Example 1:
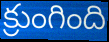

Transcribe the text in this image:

క్రుంగింది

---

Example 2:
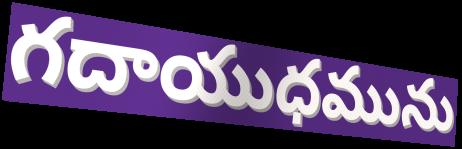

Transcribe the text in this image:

గదాయుధమును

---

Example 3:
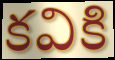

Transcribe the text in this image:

కవికి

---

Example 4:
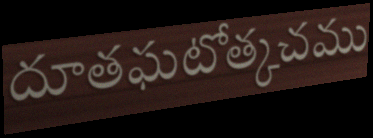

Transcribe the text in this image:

దూతఘటోత్కచము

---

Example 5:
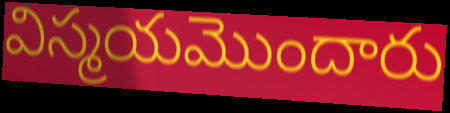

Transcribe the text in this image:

విస్మయమొందారు